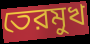
তেরমুখ